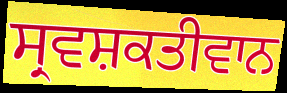
ਸ੍ਰਵਸ਼ਕਤੀਵਾਨ